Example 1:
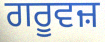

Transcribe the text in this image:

ਗਰੂਵਜ਼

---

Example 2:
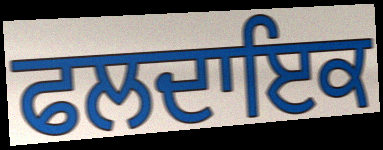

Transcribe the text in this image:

ਫਲਦਾਇਕ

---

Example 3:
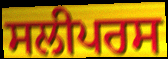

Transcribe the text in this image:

ਸਲੀਪਰਸ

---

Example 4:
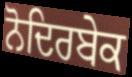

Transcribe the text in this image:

ਨੋਦਿਰਬੇਕ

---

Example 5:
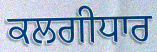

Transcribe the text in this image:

ਕਲਗੀਧਾਰ